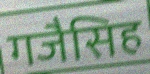
गजैसिह